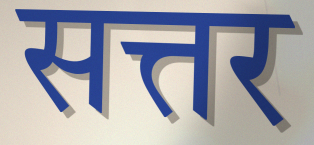
सत्तर